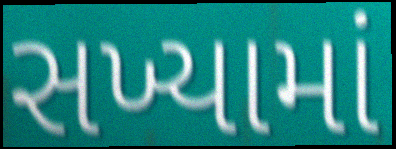
સખ્યામાં